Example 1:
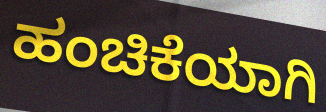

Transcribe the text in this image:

ಹಂಚಿಕೆಯಾಗಿ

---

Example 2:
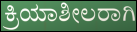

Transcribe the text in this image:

ಕ್ರಿಯಾಶೀಲರಾಗಿ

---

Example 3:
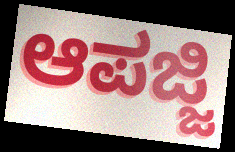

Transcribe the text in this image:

ಆಪಜ್ಜಿ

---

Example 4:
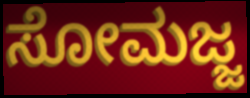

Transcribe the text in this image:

ಸೋಮಜ್ಜ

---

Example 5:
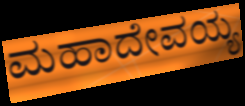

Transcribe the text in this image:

ಮಹಾದೇವಯ್ಯ